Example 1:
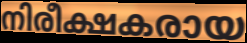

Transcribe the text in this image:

നിരീക്ഷകരായ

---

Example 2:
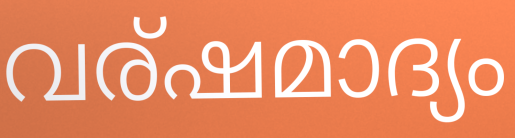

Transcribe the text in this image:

വര്ഷമാദ്യം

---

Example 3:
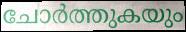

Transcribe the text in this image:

ചോർത്തുകയും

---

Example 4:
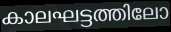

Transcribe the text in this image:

കാലഘട്ടത്തിലോ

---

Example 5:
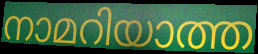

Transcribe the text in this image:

നാമറിയാത്ത